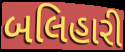
બલિહારી